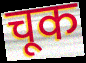
चूक